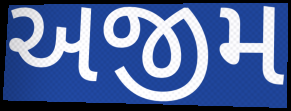
અજીમ